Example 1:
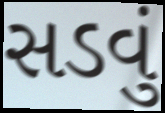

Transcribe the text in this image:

સડવું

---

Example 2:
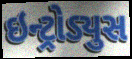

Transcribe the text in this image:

ઇન્ટ્રોડ્યુસ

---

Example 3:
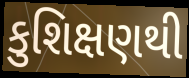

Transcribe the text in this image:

કુશિક્ષણથી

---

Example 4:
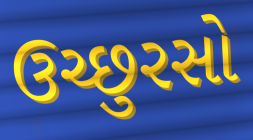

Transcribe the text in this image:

ઉચ્છુરસો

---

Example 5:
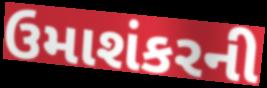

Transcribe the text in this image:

ઉમાશંકરની